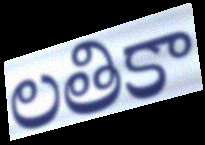
లతికా